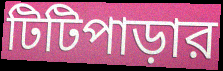
টিটিপাড়ার